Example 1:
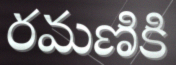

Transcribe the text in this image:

రమణికి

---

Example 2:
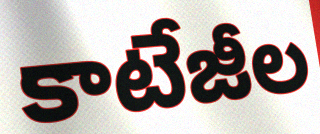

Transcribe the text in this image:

కాటేజీల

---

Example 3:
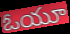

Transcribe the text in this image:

ఓయూ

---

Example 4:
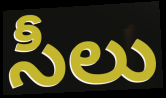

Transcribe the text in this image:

సీలు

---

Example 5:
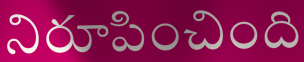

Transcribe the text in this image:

నిరూపించింది